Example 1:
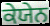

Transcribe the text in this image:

ਕੇਯੇਨ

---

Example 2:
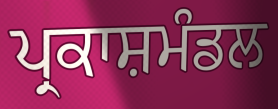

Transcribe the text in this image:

ਪ੍ਰਕਾਸ਼ਮੰਡਲ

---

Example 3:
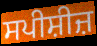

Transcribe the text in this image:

ਸਪੀਸ਼ੀਜ਼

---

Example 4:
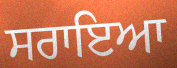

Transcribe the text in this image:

ਸਰਾਇਆ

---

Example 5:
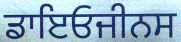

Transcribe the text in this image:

ਡਾਇਓਜੀਨਸ